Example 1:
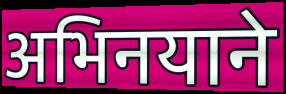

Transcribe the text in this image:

अभिनयाने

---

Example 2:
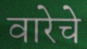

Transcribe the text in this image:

वारेचे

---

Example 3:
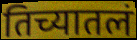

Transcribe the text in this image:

तिच्यातलं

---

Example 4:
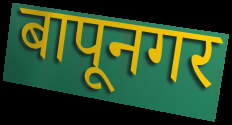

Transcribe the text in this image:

बापूनगर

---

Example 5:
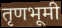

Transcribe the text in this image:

तृणभूमी